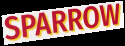
SPARROW